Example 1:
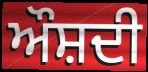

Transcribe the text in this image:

ਔਸ਼ਦੀ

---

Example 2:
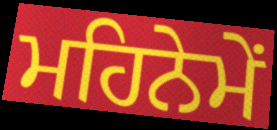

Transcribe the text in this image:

ਮਹਿਨੇਮੇਂ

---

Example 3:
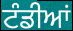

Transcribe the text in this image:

ਟੰਡੀਆਂ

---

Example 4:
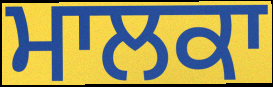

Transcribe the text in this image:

ਮਾਲਕਾ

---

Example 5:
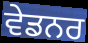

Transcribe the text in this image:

ਵੇਡਨਰ